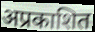
अप्रकाशित